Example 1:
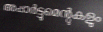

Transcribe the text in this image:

അപ്പാർട്ടുമെന്റുകളും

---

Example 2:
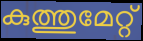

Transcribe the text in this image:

കുത്തുമേറ്റ്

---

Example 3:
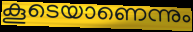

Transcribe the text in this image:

കൂടെയാണെന്നും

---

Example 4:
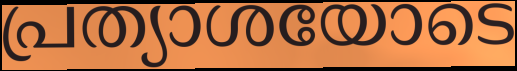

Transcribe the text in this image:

പ്രത്യാശയോടെ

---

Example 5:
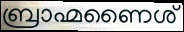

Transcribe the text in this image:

ബ്രാഹ്മണൈശ്